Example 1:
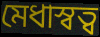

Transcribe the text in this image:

মেধাস্বত্ব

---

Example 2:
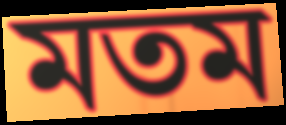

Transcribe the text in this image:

মতম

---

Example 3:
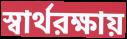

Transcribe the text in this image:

স্বার্থরক্ষায়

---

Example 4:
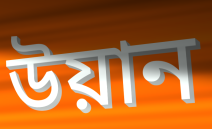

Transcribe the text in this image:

উয়ান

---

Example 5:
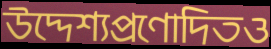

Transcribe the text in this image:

উদ্দেশ্যপ্রণোদিতও